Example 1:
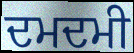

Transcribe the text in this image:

ਦਮਦਮੀ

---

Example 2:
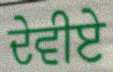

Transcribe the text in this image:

ਦੇਵੀਏ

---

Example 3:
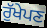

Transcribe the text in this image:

ਰੁੱਖੇਪਣ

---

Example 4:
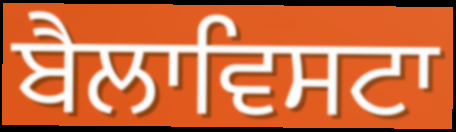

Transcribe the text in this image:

ਬੈਲਾਵਿਸਟਾ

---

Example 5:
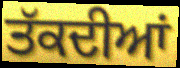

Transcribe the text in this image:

ਤੱਕਦੀਆਂ